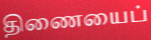
திணையைப்